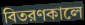
বিতরণকালে